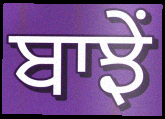
ਬਾਝੇਂ